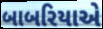
બાબરિયાએ